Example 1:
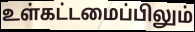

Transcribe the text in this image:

உள்கட்டமைப்பிலும்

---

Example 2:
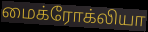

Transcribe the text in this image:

மைக்ரோக்லியா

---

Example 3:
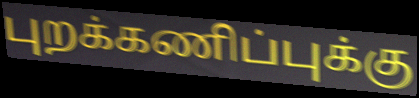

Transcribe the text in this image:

புறக்கணிப்புக்கு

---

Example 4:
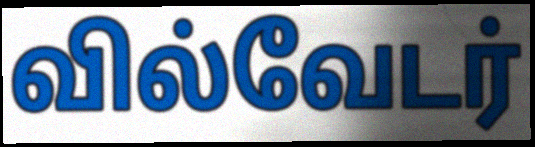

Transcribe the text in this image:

வில்வேடர்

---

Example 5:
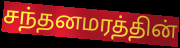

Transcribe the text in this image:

சந்தனமரத்தின்